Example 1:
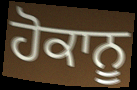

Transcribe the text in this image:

ਹੋਕਾਨੂ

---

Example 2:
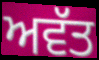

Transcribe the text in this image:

ਅਵੱਤ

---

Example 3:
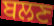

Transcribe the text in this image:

ਬਲਣ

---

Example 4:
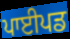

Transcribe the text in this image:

ਪਾਈਪਡ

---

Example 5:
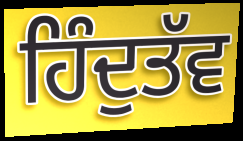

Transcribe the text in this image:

ਹਿੰਦੁਤੱਵ